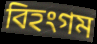
বিহংগম